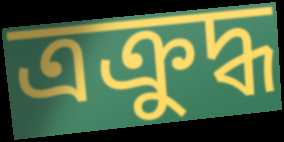
ত্রক্রুদ্ধ